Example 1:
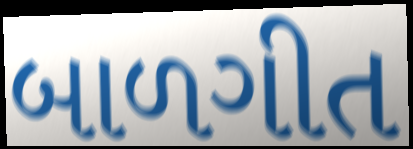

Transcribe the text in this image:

બાળગીત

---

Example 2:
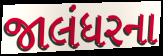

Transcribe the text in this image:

જાલંધરના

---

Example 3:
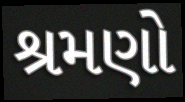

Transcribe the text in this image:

શ્રમણો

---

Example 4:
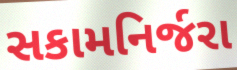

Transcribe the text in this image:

સકામનિર્જરા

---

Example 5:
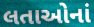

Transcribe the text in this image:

લતાઓનાં